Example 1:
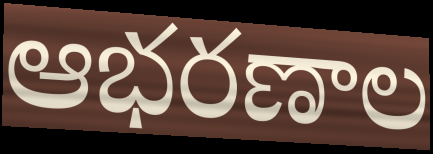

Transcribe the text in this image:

ఆభరణాల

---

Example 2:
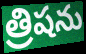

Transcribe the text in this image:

త్రిషను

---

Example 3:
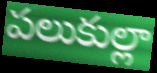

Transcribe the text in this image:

పలుకుల్లా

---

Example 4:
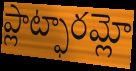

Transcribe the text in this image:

ప్లాట్ఫారమ్లో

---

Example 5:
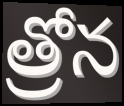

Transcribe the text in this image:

త్రోన